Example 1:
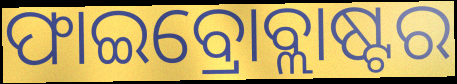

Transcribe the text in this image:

ଫାଇବ୍ରୋବ୍ଲାଷ୍ଟର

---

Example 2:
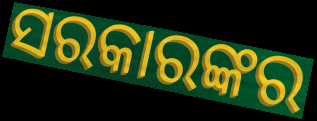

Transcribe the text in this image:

ସରକାରଙ୍କର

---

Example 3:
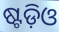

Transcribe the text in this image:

ଷ୍ଟଡ଼ିଓ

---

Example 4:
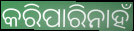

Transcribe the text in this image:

କରିପାରିନାହଁ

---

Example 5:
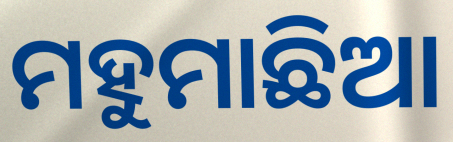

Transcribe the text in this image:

ମହୁମାଛିଆ